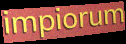
impiorum